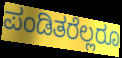
ಪಂಡಿತರೆಲ್ಲರೂ